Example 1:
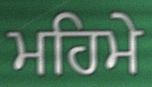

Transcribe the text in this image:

ਮਹਿਮੇ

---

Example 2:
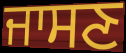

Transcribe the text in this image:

ਜਾਸਣ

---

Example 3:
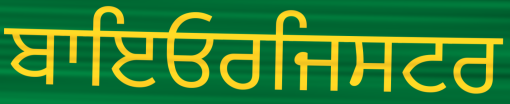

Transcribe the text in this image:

ਬਾਇਓਰਜਿਸਟਰ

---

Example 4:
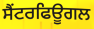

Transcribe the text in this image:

ਸੈਂਟਰਫਿਊਗਲ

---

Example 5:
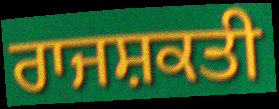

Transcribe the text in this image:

ਰਾਜਸ਼ਕਤੀ